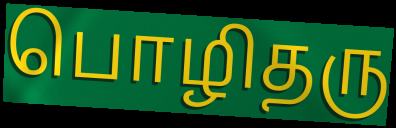
பொழிதரு